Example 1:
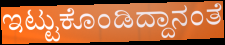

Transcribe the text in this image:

ಇಟ್ಟುಕೊಂಡಿದ್ದಾನಂತೆ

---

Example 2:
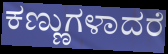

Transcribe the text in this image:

ಕಣ್ಣುಗಳಾದರೆ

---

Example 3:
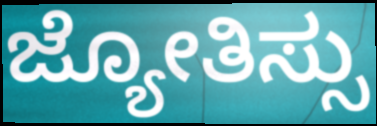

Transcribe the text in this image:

ಜ್ಯೋತಿಸ್ಸು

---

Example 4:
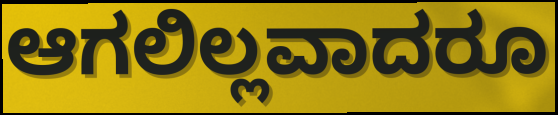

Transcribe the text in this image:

ಆಗಲಿಲ್ಲವಾದರೂ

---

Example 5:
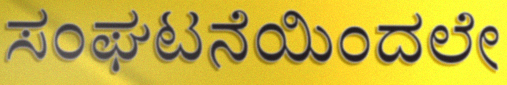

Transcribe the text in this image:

ಸಂಘಟನೆಯಿಂದಲೇ